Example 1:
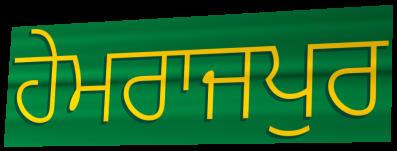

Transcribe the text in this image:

ਹੇਮਰਾਜਪੁਰ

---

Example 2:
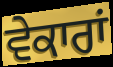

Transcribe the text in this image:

ਵੇਕਾਰਾਂ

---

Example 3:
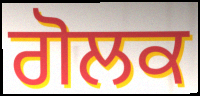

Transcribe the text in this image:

ਗੋਲਕ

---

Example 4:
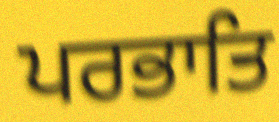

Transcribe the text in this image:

ਪਰਭਾਤਿ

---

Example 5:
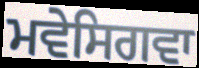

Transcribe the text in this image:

ਮਵੇਸਿਗਵਾ